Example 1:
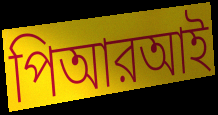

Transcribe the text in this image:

পিআরআই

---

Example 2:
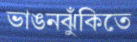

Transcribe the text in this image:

ভাঙনঝুঁকিতে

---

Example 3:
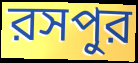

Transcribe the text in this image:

রসপুর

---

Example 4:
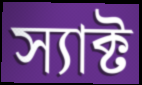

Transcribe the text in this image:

স্যাক্ট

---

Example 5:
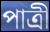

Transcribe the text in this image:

পাত্রী